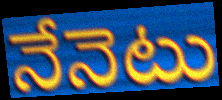
నేనెటు